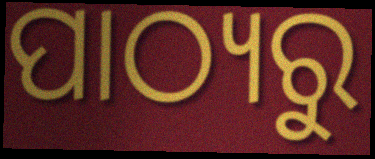
ପାଠ୍ୟରୁ